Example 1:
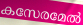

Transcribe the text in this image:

കസേരമേൽ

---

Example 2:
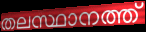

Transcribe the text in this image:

തലസ്ഥാനത്ത്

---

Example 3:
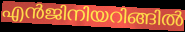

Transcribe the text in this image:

എൻജിനിയറിങ്ങിൽ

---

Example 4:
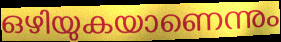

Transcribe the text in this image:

ഒഴിയുകയാണെന്നും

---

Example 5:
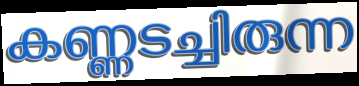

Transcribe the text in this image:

കണ്ണടച്ചിരുന്ന